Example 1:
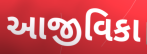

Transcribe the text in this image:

આજીવિકા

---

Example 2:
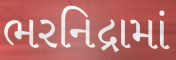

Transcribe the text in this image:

ભરનિદ્રામાં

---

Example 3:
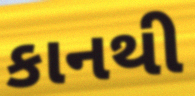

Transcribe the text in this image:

કાનથી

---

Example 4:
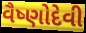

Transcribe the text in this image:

વૈષ્ણોદેવી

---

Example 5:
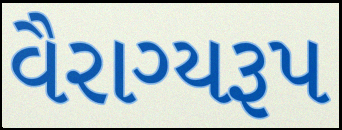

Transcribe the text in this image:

વૈરાગ્યરૂપ